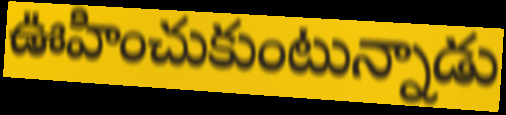
ఊహించుకుంటున్నాడు